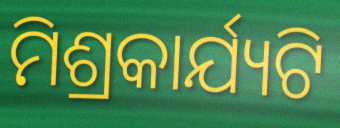
ମିଶ୍ରକାର୍ଯ୍ୟଟି